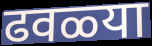
ढवळ्या